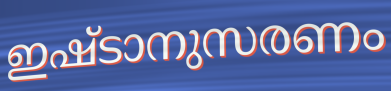
ഇഷ്ടാനുസരണം